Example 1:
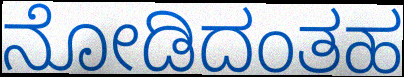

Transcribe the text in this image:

ನೋಡಿದಂತಹ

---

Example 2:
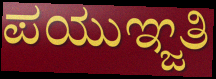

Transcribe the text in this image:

ಪಯುಞ್ಜತಿ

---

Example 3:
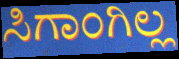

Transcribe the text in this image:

ಸಿಗಾಂಗಿಲ್ಲ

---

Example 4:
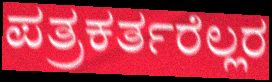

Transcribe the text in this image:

ಪತ್ರಕರ್ತರೆಲ್ಲರ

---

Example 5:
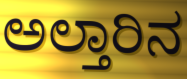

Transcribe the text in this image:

ಅಲ್ತಾರಿನ